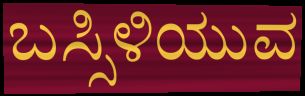
ಬಸ್ಸಿಳಿಯುವ